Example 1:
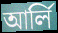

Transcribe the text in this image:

আর্লি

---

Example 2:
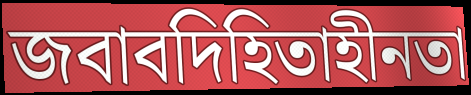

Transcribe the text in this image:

জবাবদিহিতাহীনতা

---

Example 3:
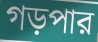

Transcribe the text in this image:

গড়পার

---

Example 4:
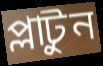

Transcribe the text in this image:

প্লাটুন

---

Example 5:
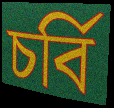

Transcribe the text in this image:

চর্বি